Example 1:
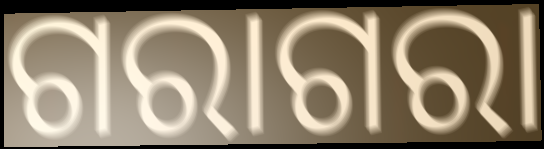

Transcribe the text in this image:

ଗରାଗରା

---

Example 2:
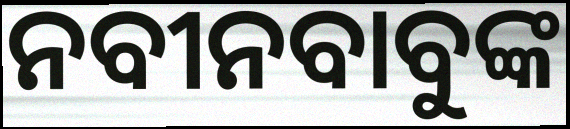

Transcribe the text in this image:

ନବୀନବାବୁଙ୍କ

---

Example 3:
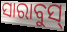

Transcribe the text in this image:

ସାରାବୁସ୍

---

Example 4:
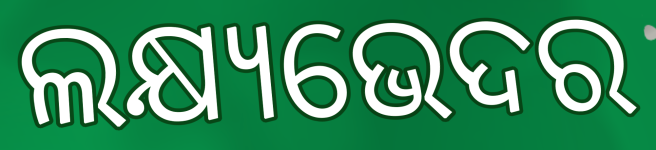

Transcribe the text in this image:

ଲକ୍ଷ୍ୟଭେଦର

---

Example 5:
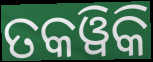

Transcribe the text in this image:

ତକୱିକି